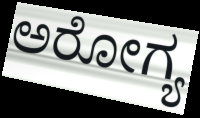
ಅರೋಗ್ಯ